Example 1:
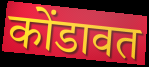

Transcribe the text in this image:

कोंडावत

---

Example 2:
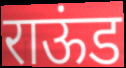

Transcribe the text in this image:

राऊंड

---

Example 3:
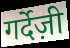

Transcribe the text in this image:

गर्देज़ी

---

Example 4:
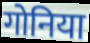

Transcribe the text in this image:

गोनिया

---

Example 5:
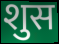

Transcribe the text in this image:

शुस